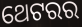
ଥେଟରର